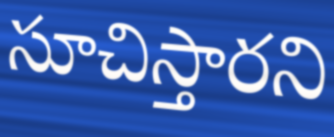
సూచిస్తారని